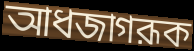
আধজাগরূক